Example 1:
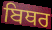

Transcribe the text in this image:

ਬਿਥਰ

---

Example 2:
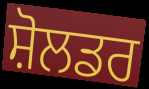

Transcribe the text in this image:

ਸ਼ੋਲਡਰ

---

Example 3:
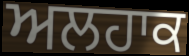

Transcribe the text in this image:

ਅਲਹਾਕ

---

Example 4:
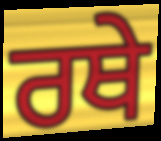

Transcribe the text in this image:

ਰਥੇ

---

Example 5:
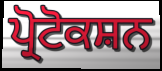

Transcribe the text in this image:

ਪ੍ਰੋਟੋਕਸ਼ਨ